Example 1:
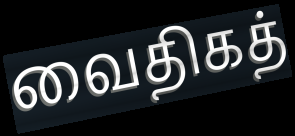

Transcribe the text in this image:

வைதிகத்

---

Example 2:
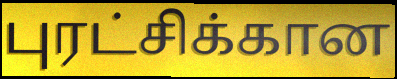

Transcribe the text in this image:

புரட்சிக்கான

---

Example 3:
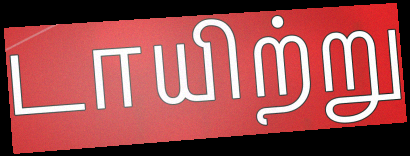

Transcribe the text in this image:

டாயிற்று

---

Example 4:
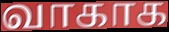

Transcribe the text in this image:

வாகாக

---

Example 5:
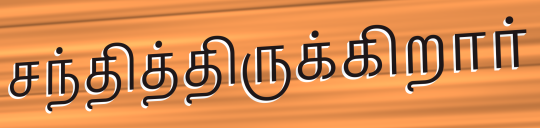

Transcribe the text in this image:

சந்தித்திருக்கிறார்